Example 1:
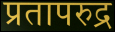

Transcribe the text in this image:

प्रतापरुद्र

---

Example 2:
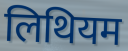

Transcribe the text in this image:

लिथियम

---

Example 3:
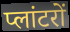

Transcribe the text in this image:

प्लांटरों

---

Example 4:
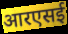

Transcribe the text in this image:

आरएसई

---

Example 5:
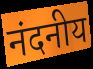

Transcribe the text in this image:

नंदनीय